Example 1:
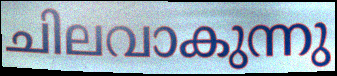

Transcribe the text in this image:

ചിലവാകുന്നു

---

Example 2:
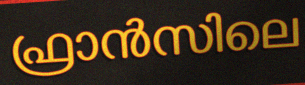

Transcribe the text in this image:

ഫ്രാൻസിലെ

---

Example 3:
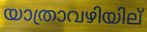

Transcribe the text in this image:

യാത്രാവഴിയില്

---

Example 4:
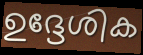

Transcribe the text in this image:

ഉദ്ദേശിക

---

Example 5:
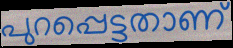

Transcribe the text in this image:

പുറപ്പെട്ടതാണ്